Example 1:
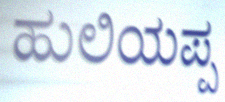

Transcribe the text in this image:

ಹುಲಿಯಪ್ಪ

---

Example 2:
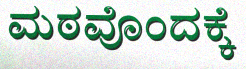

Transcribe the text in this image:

ಮಠವೊಂದಕ್ಕೆ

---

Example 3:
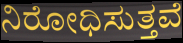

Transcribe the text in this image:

ನಿರೋಧಿಸುತ್ತವೆ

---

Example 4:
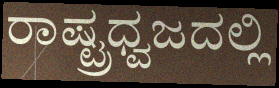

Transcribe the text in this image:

ರಾಷ್ಟ್ರಧ್ವಜದಲ್ಲಿ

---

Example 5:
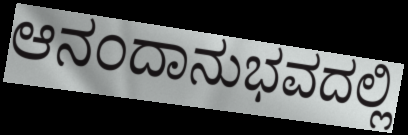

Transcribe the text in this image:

ಆನಂದಾನುಭವದಲ್ಲಿ